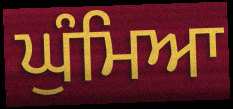
ਘੁੰਮਿਆ